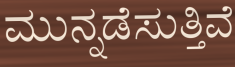
ಮುನ್ನಡೆಸುತ್ತಿವೆ